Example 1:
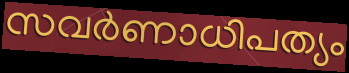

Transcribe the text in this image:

സവർണാധിപത്യം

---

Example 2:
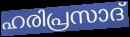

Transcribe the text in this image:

ഹരിപ്രസാദ്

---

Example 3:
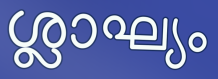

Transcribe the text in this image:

ശ്ലാഘ്യം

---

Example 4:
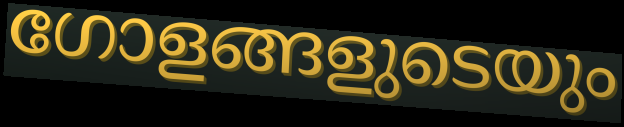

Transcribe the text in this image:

ഗോളങ്ങളുടെയും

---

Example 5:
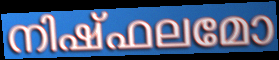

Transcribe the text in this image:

നിഷ്ഫലമോ